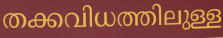
തക്കവിധത്തിലുള്ള